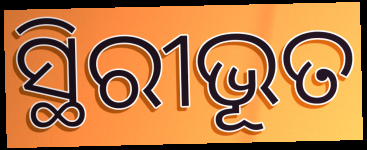
ସ୍ଥିରୀଭୂତ